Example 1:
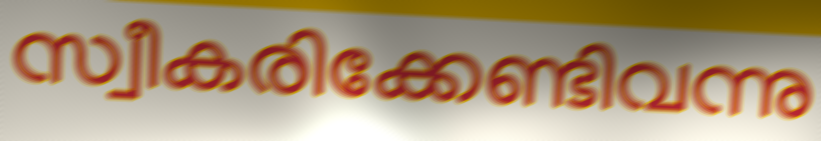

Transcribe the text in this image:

സ്വീകരിക്കേണ്ടിവന്നു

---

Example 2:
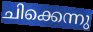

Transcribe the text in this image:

ചിക്കെന്നു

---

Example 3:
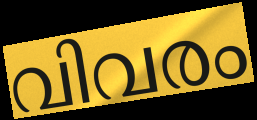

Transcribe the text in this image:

വിവരം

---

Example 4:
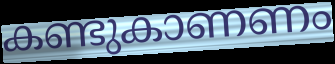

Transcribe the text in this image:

കണ്ടുകാണണം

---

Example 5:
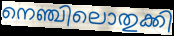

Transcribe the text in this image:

നെഞ്ചിലൊതുക്കി